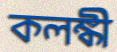
কলঙ্কী